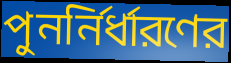
পুনর্নির্ধারণের